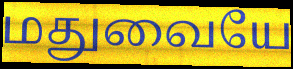
மதுவையே